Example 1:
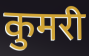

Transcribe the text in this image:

कुमरी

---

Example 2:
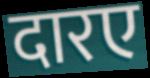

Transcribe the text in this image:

दारए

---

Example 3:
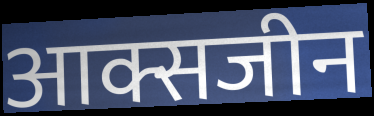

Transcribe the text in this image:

आक्सजीन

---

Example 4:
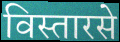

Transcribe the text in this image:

विस्तारसे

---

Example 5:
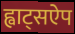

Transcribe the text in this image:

ह्वाट्सऐप